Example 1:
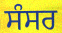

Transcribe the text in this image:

ਸੰਸਰ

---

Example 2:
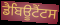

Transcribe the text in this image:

ਡੈਬਿਊਟੈਂਟਸ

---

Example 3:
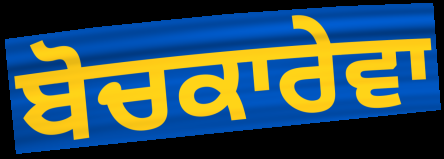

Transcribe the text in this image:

ਬੋਚਕਾਰੇਵਾ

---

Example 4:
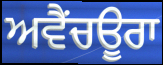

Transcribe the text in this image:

ਅਵੈਂਚਊਰਾ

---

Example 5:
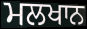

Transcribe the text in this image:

ਮਲਖਾਨ